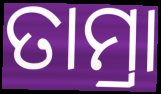
ତାମ୍ରା